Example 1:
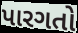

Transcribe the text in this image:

પારગતો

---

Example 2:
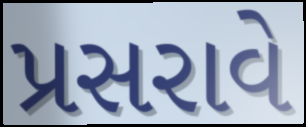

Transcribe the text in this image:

પ્રસરાવે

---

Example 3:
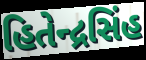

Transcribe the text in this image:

હિતેન્દ્રસિંહ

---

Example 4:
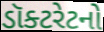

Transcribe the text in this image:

ડૉક્ટરેટનો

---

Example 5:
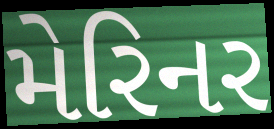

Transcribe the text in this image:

મેરિનર